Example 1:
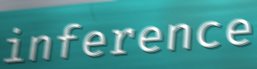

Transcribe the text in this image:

inference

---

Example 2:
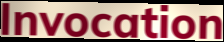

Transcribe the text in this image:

Invocation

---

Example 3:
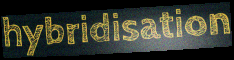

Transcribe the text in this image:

hybridisation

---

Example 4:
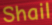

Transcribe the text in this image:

Shail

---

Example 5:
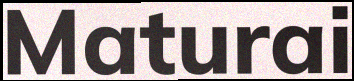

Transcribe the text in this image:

Maturai